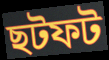
ছটফট